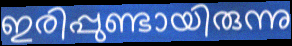
ഇരിപ്പുണ്ടായിരുന്നു